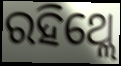
ରହିଥ୍ଲେ